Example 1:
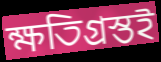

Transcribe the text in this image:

ক্ষতিগ্রস্তই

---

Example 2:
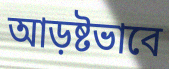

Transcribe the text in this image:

আড়ষ্টভাবে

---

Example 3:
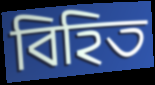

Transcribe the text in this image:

বিহিত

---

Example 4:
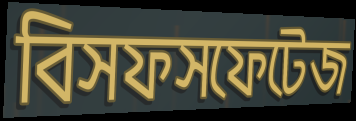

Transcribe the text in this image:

বিসফসফেটেজ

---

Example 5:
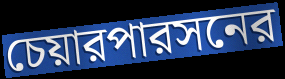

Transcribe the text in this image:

চেয়ারপারসনের